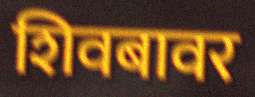
शिवबावर